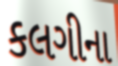
કલગીના